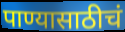
पाण्यासाठीचं